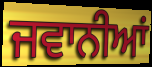
ਜਵਾਨੀਆਂ